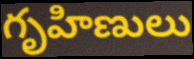
గృహిణులు